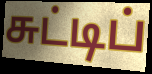
சுட்டிப்